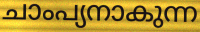
ചാംപ്യനാകുന്ന